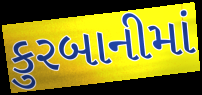
કુરબાનીમાં